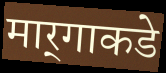
मार्गाकडे